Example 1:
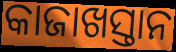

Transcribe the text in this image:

କାଜାଖସ୍ତାନ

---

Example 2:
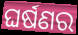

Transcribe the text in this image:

ଘର୍ଷଣର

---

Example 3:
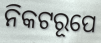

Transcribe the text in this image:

ନିକଟରୂପେ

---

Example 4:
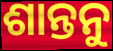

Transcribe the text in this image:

ଶାନ୍ତନୁ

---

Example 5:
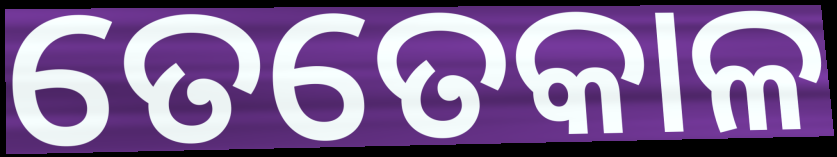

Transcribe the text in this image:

ତେତେକାଳ